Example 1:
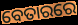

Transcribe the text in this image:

ବେତାରରେ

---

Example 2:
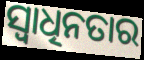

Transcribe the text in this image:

ସ୍ୱାଧିନତାର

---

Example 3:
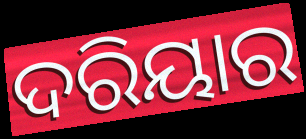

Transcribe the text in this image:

ଦରିୟାର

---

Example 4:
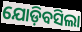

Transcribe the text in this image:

ଯୋଡ଼ିବସିଲା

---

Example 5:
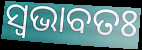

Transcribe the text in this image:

ସ୍ଵଭାବତଃ